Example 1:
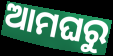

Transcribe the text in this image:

ଆମଘରୁ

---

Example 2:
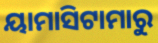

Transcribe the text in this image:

ୟାମାସିଟାମାରୁ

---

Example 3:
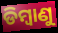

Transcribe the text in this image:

ଡିମ୍ୱାଣୁ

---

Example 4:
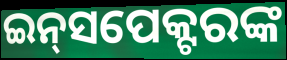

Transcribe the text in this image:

ଇନ୍‍ସପେକ୍ଟରଙ୍କ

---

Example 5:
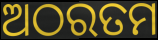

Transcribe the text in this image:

ଅଠରତମ